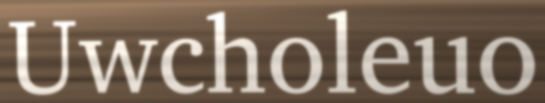
Uwcholeuo